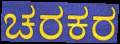
ಚರಕರ